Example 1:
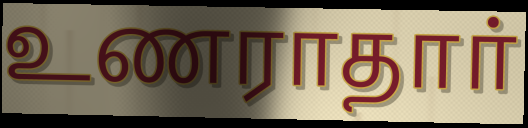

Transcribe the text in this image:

உணராதார்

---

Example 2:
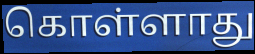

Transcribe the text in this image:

கொள்ளாது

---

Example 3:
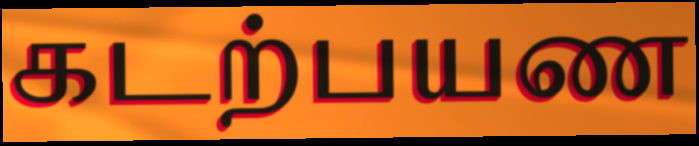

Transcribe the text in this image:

கடற்பயண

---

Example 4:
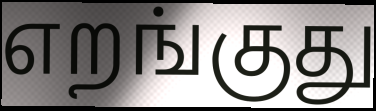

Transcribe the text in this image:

எறங்குது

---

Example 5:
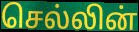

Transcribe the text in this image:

செல்லின்